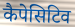
कैपेसिटिव